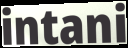
intani